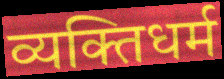
व्यक्तिधर्म